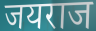
जयराज